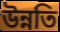
উন্নতি